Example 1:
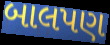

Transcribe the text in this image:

બાલપણ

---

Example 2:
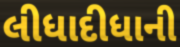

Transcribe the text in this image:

લીધાદીધાની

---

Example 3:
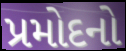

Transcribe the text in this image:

પ્રમોદનો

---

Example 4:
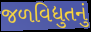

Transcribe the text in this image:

જળવિદ્યુતનું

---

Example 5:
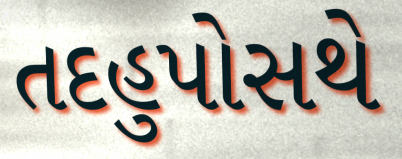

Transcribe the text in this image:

તદહુપોસથે